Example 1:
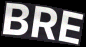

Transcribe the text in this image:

BRE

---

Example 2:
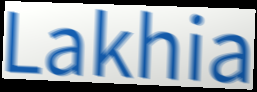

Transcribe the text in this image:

Lakhia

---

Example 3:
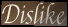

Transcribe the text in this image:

Dislike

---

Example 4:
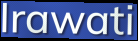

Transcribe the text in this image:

Irawati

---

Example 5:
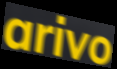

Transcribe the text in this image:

arivo